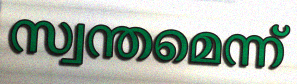
സ്വന്തമെന്ന്